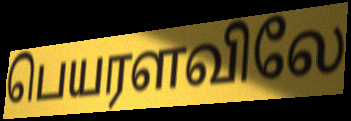
பெயரளவிலே